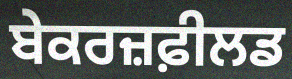
ਬੇਕਰਜ਼ਫ਼ੀਲਡ